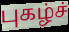
புகழ்ச்